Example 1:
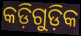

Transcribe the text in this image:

କଡ଼ିଗୁଡ଼ିକ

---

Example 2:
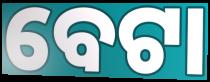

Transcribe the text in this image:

ବେଟା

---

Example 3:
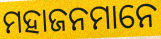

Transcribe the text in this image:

ମହାଜନମାନେ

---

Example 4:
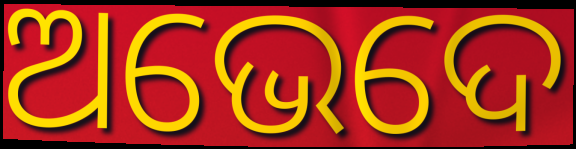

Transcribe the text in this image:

ଅଭେଦେ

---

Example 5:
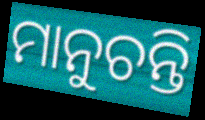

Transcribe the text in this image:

ମାନୁଚନ୍ତି